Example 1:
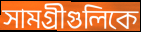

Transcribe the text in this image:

সামগ্রীগুলিকে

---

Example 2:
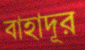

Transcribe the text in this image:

বাহাদূর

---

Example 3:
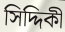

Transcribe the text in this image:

সিদ্দিকী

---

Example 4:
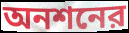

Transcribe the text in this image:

অনশনের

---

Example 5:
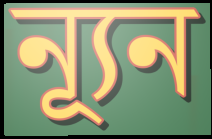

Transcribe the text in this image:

ন্যূন